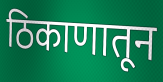
ठिकाणातून